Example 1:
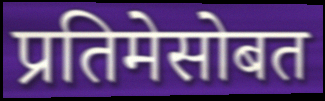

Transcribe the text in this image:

प्रतिमेसोबत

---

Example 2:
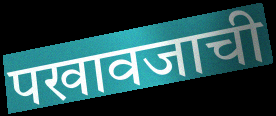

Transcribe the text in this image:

पखावजाची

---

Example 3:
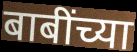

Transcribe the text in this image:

बाबींच्या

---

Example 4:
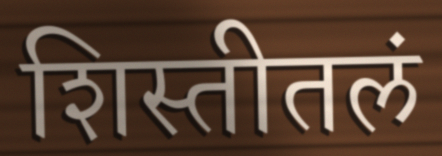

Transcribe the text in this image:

शिस्तीतलं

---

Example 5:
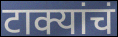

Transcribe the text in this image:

टाक्यांचं